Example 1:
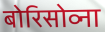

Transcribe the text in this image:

बोरिसोव्ना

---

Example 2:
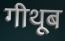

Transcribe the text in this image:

गीथूब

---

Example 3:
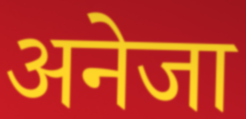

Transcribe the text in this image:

अनेजा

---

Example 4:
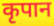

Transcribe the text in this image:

कृपान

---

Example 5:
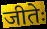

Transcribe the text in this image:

जीतेः